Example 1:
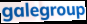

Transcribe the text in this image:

galegroup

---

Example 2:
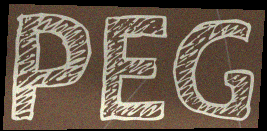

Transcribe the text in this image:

PEG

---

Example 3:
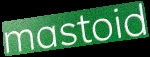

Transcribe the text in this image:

mastoid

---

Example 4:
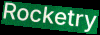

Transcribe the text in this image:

Rocketry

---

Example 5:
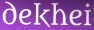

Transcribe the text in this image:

dekhei